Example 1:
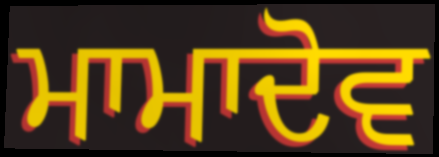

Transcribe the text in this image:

ਮਾਮਾਦੋਵ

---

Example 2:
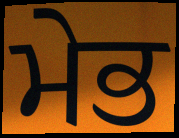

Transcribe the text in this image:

ਮੇਭ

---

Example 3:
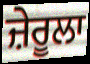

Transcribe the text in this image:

ਜ਼ੇਰੂਲਾ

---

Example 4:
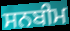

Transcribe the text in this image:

ਸਨਬੀਮ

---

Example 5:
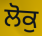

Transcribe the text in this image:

ਲੋਕੁ